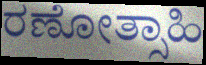
ರಣೋತ್ಸಾಹಿ